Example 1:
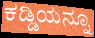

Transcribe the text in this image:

ಕಡ್ಡಿಯನ್ನೂ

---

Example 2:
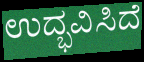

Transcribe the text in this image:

ಉದ್ಭವಿಸಿದೆ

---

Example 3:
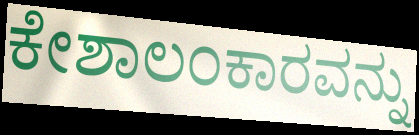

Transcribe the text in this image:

ಕೇಶಾಲಂಕಾರವನ್ನು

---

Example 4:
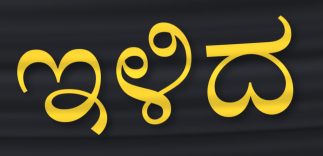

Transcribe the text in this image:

ಇಳಿದ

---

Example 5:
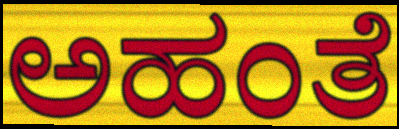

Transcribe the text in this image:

ಅಹಂತೆ